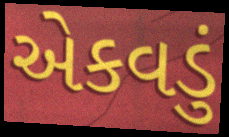
એકવડું